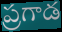
ప్రగాడ